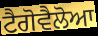
ਟੈਗੋਵੈਲੋਆ